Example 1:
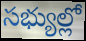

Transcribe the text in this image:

సభ్యుల్లో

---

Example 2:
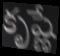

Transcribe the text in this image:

కృష్ణే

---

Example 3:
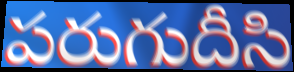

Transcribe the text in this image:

పరుగుదీసి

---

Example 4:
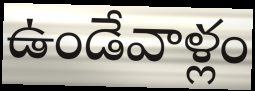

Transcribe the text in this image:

ఉండేవాళ్లం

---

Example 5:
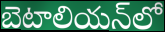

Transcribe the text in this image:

బెటాలియన్‌లో